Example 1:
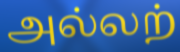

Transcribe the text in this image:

அல்லற்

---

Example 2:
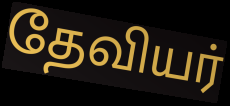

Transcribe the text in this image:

தேவியர்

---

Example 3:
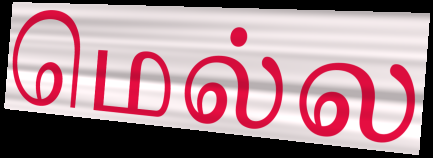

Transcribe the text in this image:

மெல்ல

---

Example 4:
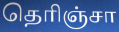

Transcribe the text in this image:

தெரிஞ்சா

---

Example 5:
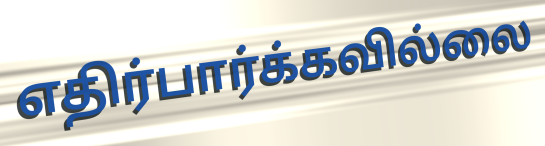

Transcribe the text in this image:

எதிர்பார்க்கவில்லை